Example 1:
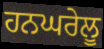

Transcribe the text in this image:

ਹਨਘਰੇਲੂ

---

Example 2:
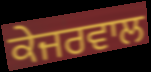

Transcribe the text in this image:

ਕੇਜਰਵਾਲ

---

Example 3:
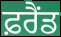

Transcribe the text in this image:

ਫ਼ਰੈਂਡ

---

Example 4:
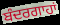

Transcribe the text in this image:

ਬੰਦਰਗਾਹਾਂ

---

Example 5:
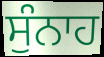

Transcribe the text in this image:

ਸੁੰਨਾਹ